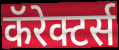
कॅरेक्टर्स